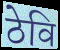
ठेवि